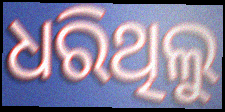
ଧରିଥିଲୁ